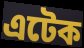
এটেক